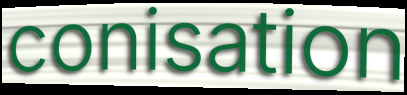
conisation